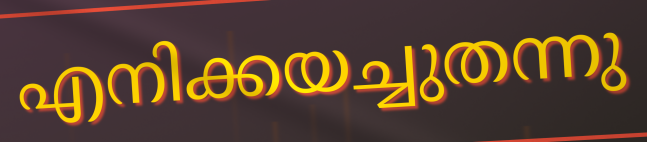
എനിക്കയച്ചുതന്നു